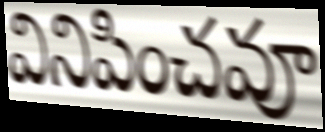
వినిపించవూ